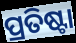
ପ୍ରତିଷ୍ଟା